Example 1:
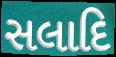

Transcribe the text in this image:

સલાદિ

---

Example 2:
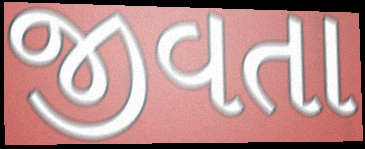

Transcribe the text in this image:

જીવતા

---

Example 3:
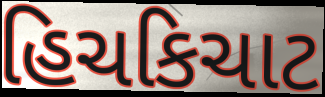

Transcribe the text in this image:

હિચકિચાટ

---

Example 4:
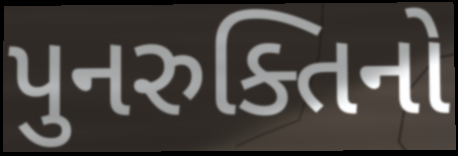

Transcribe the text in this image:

પુનરુક્તિનો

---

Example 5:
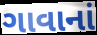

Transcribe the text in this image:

ગાવાનાં